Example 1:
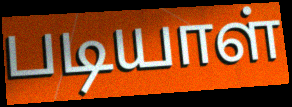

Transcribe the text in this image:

படியாள்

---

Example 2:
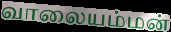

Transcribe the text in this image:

வாலையம்மன்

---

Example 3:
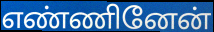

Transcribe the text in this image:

எண்ணினேன்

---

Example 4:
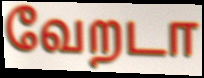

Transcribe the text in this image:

வேறடா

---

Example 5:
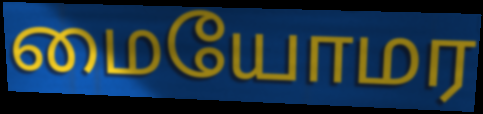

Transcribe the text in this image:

மையோமர